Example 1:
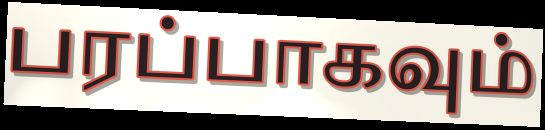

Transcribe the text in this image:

பரப்பாகவும்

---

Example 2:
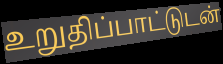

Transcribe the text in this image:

உறுதிப்பாட்டுடன்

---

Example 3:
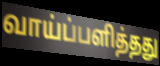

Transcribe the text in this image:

வாய்ப்பளித்தது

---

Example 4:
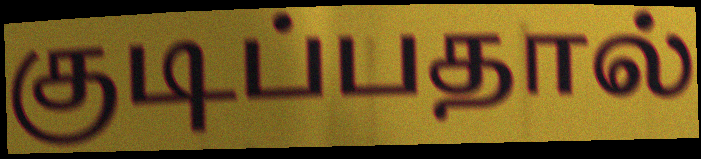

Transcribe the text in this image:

குடிப்பதால்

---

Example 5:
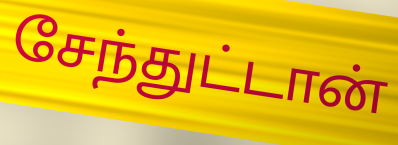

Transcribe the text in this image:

சேந்துட்டான்